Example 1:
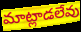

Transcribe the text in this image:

మాట్లాడలేవు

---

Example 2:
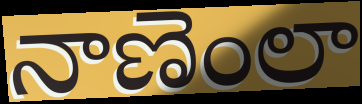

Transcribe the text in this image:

నాణెంలా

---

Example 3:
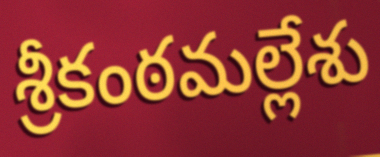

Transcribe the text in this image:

శ్రీకంఠమల్లేశు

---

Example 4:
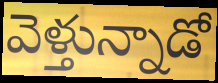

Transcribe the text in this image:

వెళ్తున్నాడో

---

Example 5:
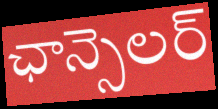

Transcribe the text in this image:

ఛాన్సెలర్